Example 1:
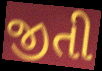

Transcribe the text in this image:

જીતી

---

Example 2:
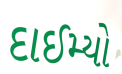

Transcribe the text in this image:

દાઈમ્યો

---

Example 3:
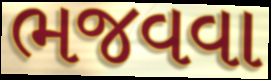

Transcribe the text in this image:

ભજવવા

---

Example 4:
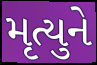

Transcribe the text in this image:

મૃત્યુને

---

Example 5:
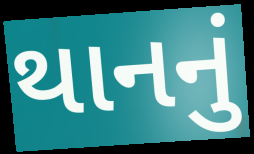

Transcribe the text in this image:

થાનનું